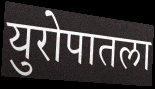
युरोपातला